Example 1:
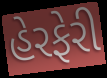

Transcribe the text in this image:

હેરફેરી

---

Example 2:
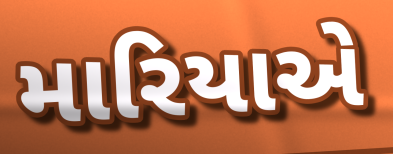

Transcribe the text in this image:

મારિયાએ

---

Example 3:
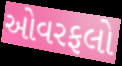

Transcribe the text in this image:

ઓવરફલો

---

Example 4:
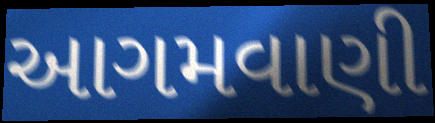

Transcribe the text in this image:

આગમવાણી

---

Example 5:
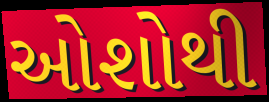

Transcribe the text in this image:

ઓશોથી